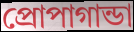
প্রোপাগান্ডা